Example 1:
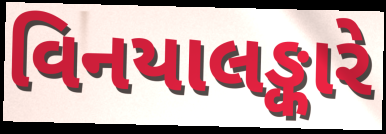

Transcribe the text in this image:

વિનયાલઙ્કારે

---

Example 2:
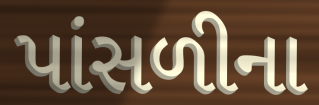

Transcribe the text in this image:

પાંસળીના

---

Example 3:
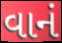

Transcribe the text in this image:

વાનં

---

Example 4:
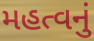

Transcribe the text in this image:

મહત્વનું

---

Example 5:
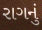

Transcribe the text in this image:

રાગનું